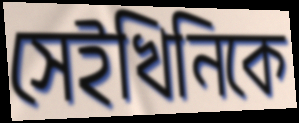
সেইখিনিকে